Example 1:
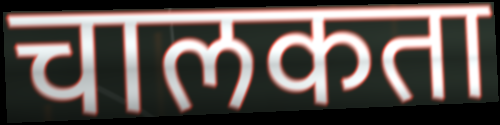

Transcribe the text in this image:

चालकता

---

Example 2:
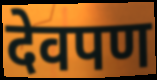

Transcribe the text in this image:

देवपण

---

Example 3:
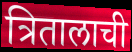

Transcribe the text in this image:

त्रितालाची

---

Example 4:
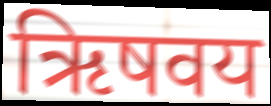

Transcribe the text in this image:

ऋिषवय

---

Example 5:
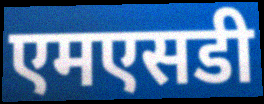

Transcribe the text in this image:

एमएसडी